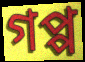
গপ্প